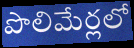
పొలిమేర్లలో